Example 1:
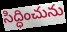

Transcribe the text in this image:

సిద్ధించును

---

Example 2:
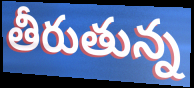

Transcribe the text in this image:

తీరుతున్న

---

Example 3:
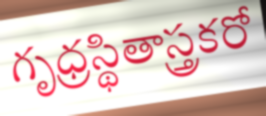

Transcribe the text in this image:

గృధ్రస్థితాస్త్రకరో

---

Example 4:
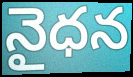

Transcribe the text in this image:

నైధన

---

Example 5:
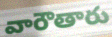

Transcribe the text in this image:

వారౌతారు